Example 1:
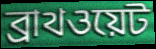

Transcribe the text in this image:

ব্রাথওয়েট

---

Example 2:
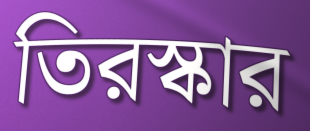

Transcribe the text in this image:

তিরস্কার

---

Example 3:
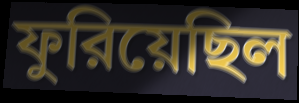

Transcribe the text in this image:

ফুরিয়েছিল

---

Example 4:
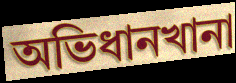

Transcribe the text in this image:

অভিধানখানা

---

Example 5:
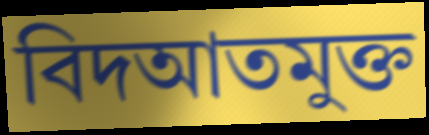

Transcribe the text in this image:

বিদআতমুক্ত